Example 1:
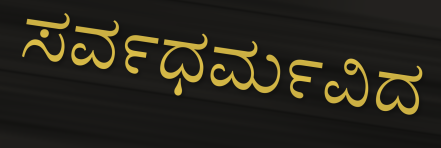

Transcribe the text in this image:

ಸರ್ವಧರ್ಮವಿದ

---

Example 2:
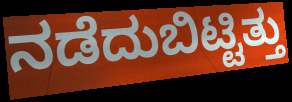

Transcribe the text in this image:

ನಡೆದುಬಿಟ್ಟಿತ್ತು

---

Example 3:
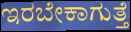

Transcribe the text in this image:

ಇರಬೇಕಾಗುತ್ತೆ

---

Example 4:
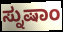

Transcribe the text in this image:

ಸ್ನುಷಾಂ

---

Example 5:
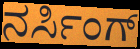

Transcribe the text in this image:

ನರ್ಸಿಂಗ್